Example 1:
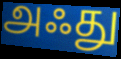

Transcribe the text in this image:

அஃது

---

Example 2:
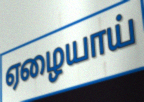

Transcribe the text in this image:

ஏழையாய்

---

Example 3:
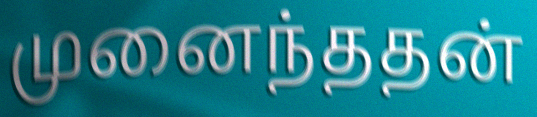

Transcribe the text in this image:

முனைந்ததன்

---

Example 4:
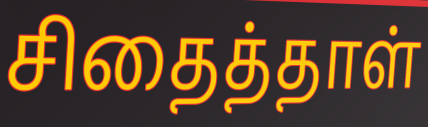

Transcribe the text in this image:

சிதைத்தாள்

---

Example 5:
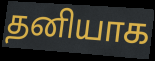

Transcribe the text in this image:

தனியாக